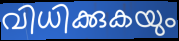
വിധിക്കുകയും